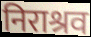
निराश्रव